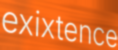
exixtence